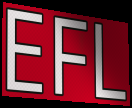
EFL